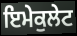
ਇਮੇਕੁਲੇਟ